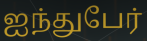
ஐந்துபேர்